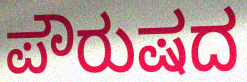
ಪೌರುಷದ